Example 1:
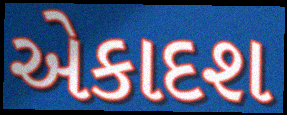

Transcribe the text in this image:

એકાદશ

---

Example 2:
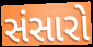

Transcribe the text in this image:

સંસારો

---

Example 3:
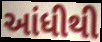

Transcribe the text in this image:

આંધીથી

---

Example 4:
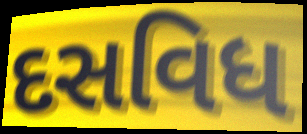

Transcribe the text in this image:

દસવિધ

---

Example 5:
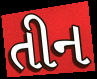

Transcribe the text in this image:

તીન